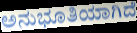
ಅನುಭೂತಿಯಾಗಿದೆ